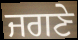
ਜਗਣੇ